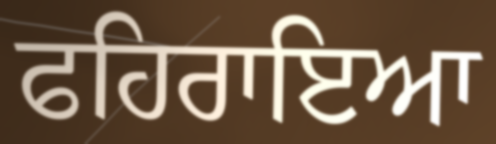
ਫਹਿਰਾਇਆ